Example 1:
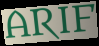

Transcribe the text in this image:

ARIF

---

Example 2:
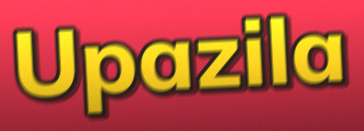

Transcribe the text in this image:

Upazila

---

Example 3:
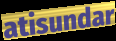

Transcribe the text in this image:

atisundar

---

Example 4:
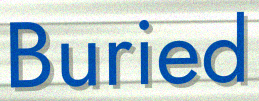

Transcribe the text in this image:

Buried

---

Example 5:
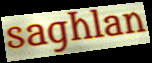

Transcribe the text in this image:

saghlan